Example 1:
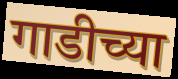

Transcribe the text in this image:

गाडीच्या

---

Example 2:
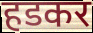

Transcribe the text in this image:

हडकर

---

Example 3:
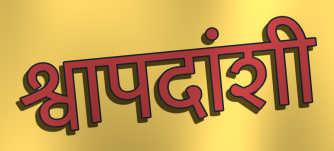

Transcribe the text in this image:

श्वापदांशी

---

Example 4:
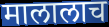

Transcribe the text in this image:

मालालाच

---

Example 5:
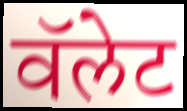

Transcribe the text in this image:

वॅलेट